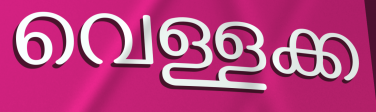
വെള്ളക്ക